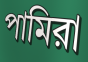
পামিরা